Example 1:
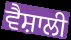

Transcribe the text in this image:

ਵੈਸ਼ਾਲੀ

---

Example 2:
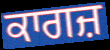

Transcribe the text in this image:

ਕਾਗਜ਼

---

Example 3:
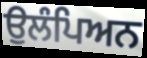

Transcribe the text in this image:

ਉਲੰਪਿਅਨ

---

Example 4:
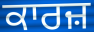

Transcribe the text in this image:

ਕਾਰਜ਼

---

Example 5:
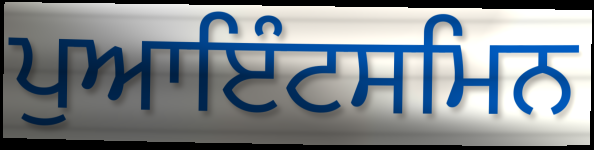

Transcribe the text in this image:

ਪੁਆਇੰਟਸਮਿਨ